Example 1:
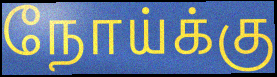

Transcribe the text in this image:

நோய்க்கு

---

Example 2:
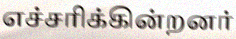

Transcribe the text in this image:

எச்சரிக்கின்றனர்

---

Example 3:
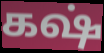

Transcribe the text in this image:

கஷ்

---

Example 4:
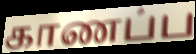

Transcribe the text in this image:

காணப்ப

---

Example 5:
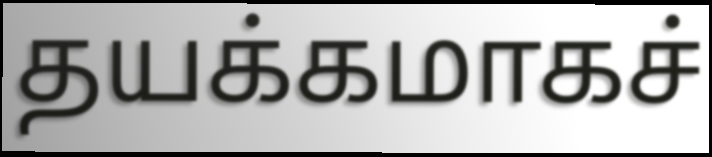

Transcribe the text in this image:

தயக்கமாகச்